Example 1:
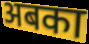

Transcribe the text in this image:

अबका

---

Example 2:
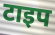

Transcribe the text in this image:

टाइप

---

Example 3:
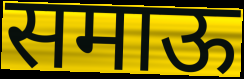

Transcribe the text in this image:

समाऊ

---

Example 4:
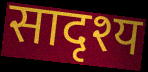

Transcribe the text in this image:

सादृश्य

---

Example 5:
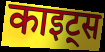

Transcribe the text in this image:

काइट्स